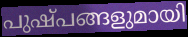
പുഷ്പങ്ങളുമായി